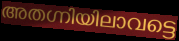
അതഗ്നിയിലാവട്ടെ